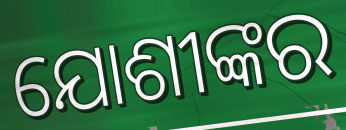
ଯୋଶୀଙ୍କର